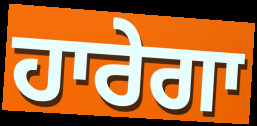
ਹਾਰੇਗਾ